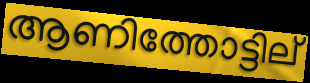
ആണിത്തോട്ടില്